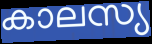
കാലസ്യ